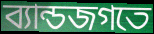
ব্যান্ডজগতে